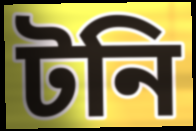
টনি